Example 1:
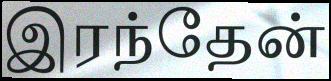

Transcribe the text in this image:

இரந்தேன்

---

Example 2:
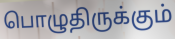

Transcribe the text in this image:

பொழுதிருக்கும்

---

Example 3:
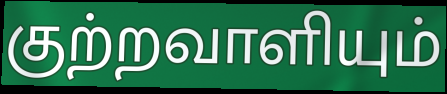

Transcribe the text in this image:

குற்றவாளியும்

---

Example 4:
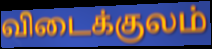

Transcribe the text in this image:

விடைக்குலம்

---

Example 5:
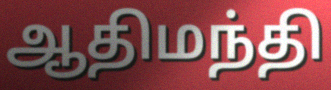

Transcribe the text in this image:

ஆதிமந்தி